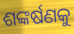
ଶଙ୍କର୍ଷଣକୁ